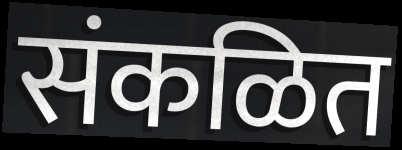
संकळित